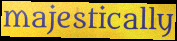
majestically